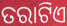
ତରାଟିଏ